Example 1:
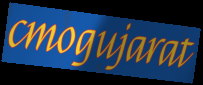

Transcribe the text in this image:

cmogujarat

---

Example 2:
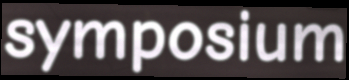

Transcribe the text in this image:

symposium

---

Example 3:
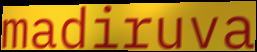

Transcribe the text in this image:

madiruva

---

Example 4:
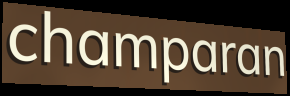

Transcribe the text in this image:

champaran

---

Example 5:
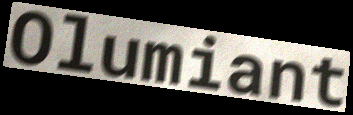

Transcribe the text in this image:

Olumiant